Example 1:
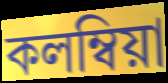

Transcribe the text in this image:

কলম্বিয়া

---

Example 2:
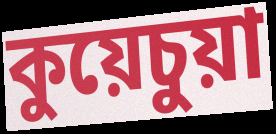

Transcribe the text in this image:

কুয়েচুয়া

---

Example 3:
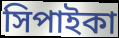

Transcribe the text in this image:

সিপাইকা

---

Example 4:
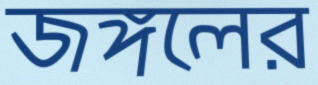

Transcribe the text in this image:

জঙ্গলের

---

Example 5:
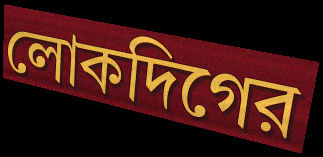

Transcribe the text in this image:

লোকদিগের